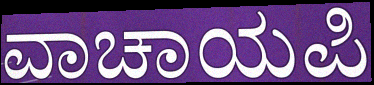
ವಾಚಾಯಪಿ